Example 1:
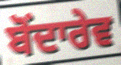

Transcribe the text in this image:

ਬੋਂਦਾਰੇਵ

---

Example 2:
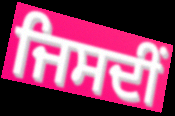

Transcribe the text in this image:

ਜਿਸਦੀਂ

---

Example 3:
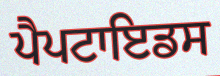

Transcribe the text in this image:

ਪੈਪਟਾਇਡਸ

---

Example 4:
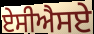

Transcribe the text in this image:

ਏਸੀਐਸਏ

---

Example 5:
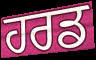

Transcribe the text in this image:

ਹਰਡ